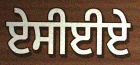
ਏਸੀਈਏ